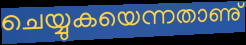
ചെയ്യുകയെന്നതാണു്